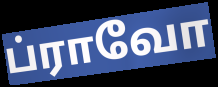
ப்ராவோ